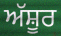
ਅੱਸ਼ੂਰ